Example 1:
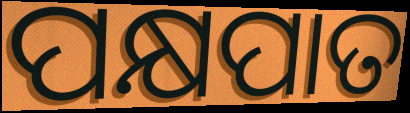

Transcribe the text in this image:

ପକ୍ଷପାତ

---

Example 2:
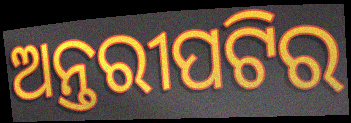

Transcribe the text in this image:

ଅନ୍ତରୀପଟିର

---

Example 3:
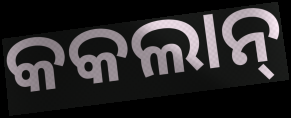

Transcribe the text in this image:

କକଲାନ୍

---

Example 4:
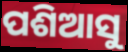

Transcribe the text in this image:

ପଶିଆସୁ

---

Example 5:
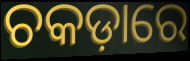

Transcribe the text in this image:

ଚକଡ଼ାରେ